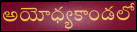
అయోధ్యకాండలో